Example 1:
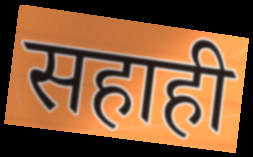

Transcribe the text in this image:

सहाही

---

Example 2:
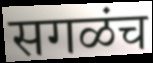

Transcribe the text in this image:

सगळंच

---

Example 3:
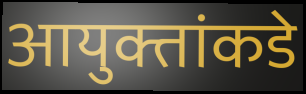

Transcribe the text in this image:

आयुक्तांकडे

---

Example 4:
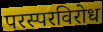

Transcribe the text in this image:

परस्परविरोध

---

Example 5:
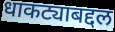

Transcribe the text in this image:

धाकट्याबद्दल